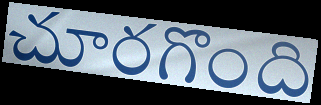
చూరగొంది